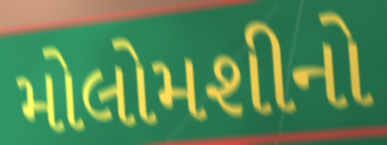
મોલોમશીનો